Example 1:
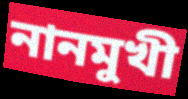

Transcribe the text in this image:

নানমুখী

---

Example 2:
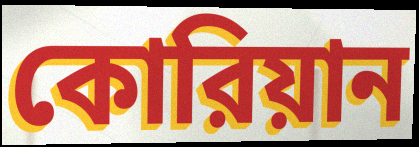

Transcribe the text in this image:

কোরিয়ান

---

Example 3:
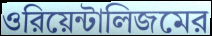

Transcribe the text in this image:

ওরিয়েন্টালিজমের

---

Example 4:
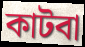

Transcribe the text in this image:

কাটবা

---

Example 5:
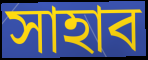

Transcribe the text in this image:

সাহাব